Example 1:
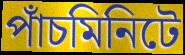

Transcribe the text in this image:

পাঁচমিনিটে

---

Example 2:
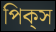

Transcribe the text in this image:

পিক্‌স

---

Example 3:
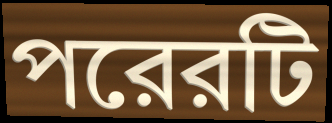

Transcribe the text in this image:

পরেরটি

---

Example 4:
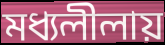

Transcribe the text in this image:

মধ্যলীলায়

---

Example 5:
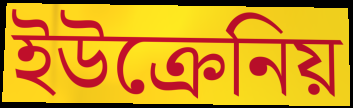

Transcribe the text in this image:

ইউক্রেনিয়